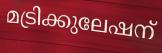
മട്രിക്കുലേഷന്